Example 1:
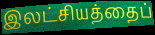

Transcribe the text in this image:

இலட்சியத்தைப்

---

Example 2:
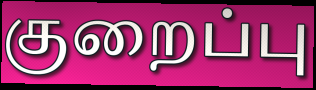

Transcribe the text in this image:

குறைப்பு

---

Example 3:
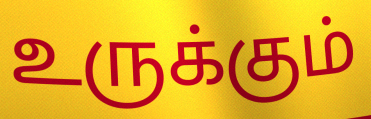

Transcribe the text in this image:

உருக்கும்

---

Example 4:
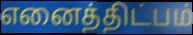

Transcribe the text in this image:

எனைத்திட்பம்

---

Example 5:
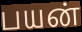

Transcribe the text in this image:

பயன்